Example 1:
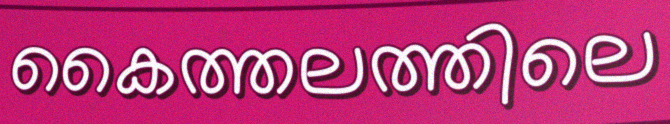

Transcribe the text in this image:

കൈത്തലത്തിലെ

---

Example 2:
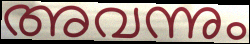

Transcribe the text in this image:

അവന്നും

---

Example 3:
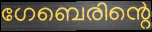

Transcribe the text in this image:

ഗേബെരിന്റെ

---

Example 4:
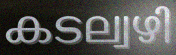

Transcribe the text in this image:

കടല്വഴി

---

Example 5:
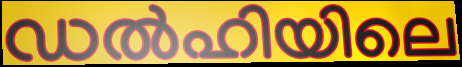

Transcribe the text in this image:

ഡൽഹിയിലെ